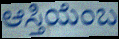
ಆಸ್ತಿಯೆಂಬ